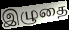
இழுதை